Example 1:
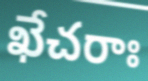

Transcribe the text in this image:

ఖేచరాః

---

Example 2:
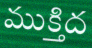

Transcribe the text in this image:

ముక్తిద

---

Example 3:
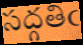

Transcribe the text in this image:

సద్గతిఁ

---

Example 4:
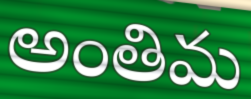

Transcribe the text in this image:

అంతిమ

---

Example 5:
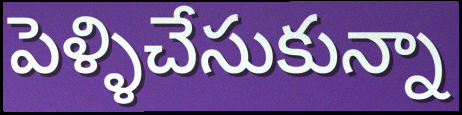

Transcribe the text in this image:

పెళ్ళిచేసుకున్నా